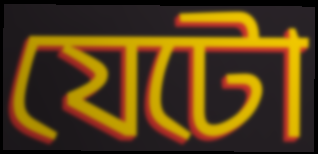
যেটো